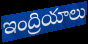
ఇంద్రియాలు